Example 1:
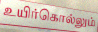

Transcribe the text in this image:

உயிர்கொல்லும்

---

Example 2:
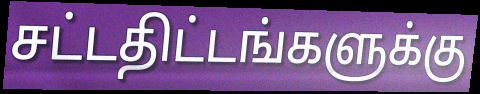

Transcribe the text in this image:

சட்டதிட்டங்களுக்கு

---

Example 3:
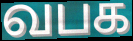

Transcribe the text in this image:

வபக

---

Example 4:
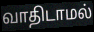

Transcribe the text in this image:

வாதிடாமல்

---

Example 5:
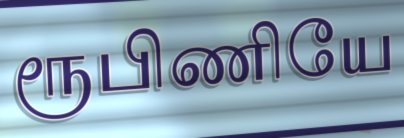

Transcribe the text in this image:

ரூபிணியே